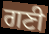
ਗਣੀ